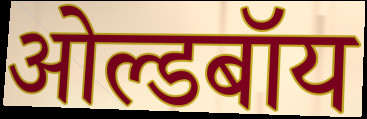
ओल्डबॉय